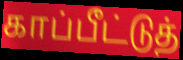
காப்பீட்டுத்